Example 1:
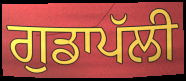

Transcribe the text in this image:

ਗੁਡਾਪੱਲੀ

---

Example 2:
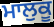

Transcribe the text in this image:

ਮਾਲੁਕੂ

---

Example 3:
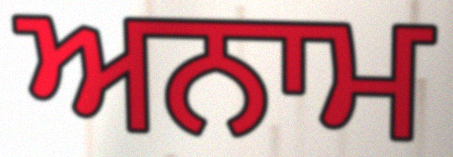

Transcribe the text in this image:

ਅਨਾਮ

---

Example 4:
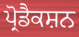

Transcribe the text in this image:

ਪ੍ਰੋਡੈਕਸ਼ਨ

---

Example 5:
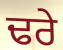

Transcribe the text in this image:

ਢਰੇ